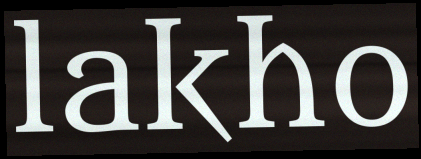
lakho